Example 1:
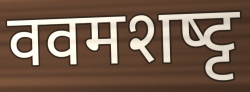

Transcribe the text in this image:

ववमशष्ट्ट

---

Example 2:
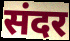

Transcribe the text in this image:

संदर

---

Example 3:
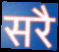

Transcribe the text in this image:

सरै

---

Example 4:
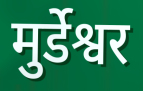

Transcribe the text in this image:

मुर्डेश्वर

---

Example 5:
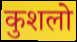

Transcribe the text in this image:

कुशलो